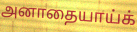
அனாதையாய்க்